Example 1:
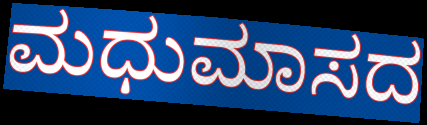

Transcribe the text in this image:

ಮಧುಮಾಸದ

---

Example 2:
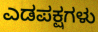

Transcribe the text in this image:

ಎಡಪಕ್ಷಗಳು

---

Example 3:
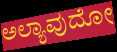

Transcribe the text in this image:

ಅಲ್ಯಾವುದೋ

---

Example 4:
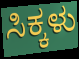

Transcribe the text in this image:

ಸಿಕ್ಕಳು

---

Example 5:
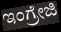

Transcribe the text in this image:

ಇಂಗ್ರೇಜಿ